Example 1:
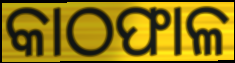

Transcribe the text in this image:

କାଠଫାଳ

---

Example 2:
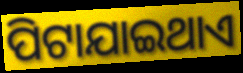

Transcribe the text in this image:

ପିଟାଯାଇଥାଏ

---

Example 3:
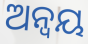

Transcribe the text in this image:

ଅନ୍ୱୟ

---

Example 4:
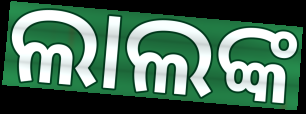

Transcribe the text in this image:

ଲାଲଙ୍କ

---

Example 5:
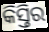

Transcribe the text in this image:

କିସ୍ତିର